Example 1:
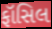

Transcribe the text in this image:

ફૉસિલ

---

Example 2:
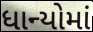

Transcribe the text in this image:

ધાન્યોમાં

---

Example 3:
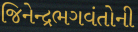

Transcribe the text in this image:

જિનેન્દ્રભગવંતોની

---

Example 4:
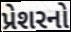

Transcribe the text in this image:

પ્રેશરનો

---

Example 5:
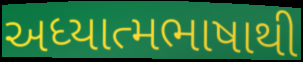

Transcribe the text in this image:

અધ્યાત્મભાષાથી